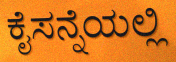
ಕೈಸನ್ನೆಯಲ್ಲಿ